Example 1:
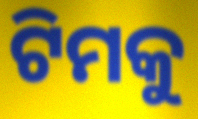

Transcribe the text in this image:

ଟିମକୁ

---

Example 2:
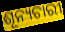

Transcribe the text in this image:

ଶୂନ୍ୟଚାରୀ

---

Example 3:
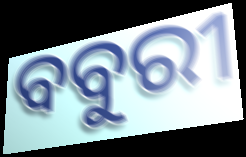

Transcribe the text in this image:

ବବୁରୀ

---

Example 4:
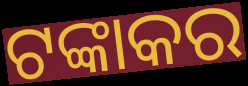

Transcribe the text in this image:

ଟଙ୍କାକର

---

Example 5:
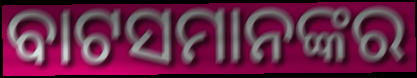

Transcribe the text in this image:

ବାଟସମାନଙ୍କର